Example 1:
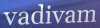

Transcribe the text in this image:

vadivam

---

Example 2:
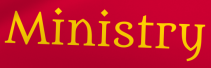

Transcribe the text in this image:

Ministry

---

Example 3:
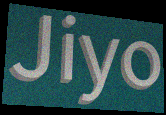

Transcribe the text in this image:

Jiyo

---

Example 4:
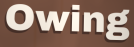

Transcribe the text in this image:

Owing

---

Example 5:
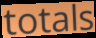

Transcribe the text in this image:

totals